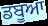
ਡਬੂਆ